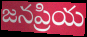
జనప్రియ